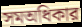
সমঅধিকার